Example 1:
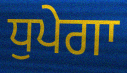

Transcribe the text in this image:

ਧੁਪੇਗਾ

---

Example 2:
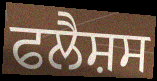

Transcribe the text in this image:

ਫਲੈਸ਼ਸ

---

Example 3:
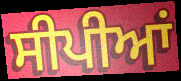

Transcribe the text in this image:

ਸੀਪੀਆਂ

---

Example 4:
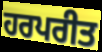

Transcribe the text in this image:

ਹਰਪਰੀਤ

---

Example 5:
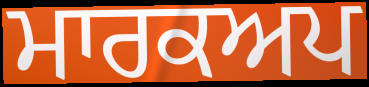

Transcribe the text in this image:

ਮਾਰਕਅਪ